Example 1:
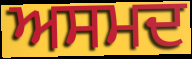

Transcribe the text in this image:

ਅਸਮਦ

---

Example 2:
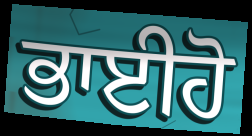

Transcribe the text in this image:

ਭਾਈਹੋ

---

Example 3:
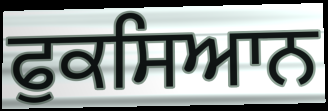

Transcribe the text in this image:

ਫੁਕਸਿਆਨ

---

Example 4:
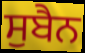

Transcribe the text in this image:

ਸੁਬੈਨ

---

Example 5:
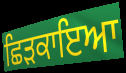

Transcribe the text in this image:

ਛਿੜਕਾਇਆ